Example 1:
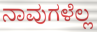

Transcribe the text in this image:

ನಾವುಗಳೆಲ್ಲ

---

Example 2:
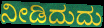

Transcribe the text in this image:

ನೀಡಿದುದು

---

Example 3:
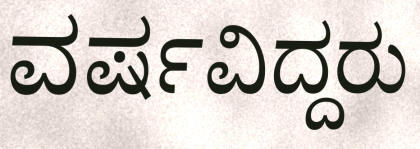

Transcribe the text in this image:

ವರ್ಷವಿದ್ದರು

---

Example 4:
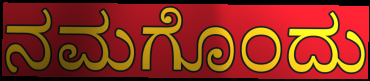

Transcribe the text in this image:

ನಮಗೊಂದು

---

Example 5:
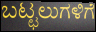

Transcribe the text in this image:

ಬಟ್ಟಲುಗಳಿಗೆ